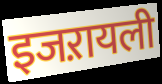
इजऱायली